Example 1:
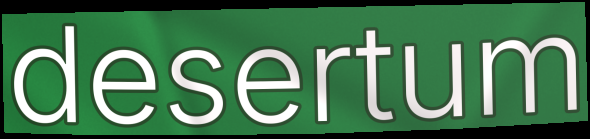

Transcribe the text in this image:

desertum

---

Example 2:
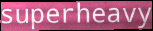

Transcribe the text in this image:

superheavy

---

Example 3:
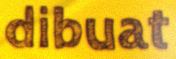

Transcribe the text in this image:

dibuat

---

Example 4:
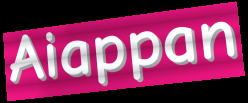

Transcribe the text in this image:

Aiappan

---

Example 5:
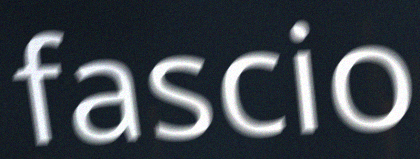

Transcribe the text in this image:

fascio